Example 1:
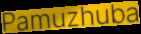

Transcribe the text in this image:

Pamuzhuba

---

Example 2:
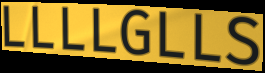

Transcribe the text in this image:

LLLLGLLS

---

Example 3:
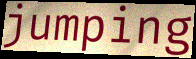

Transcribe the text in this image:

jumping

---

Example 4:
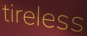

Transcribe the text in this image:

tireless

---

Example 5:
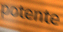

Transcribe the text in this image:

potente